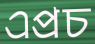
এপ্রচ